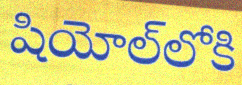
షియోల్‌లోకి